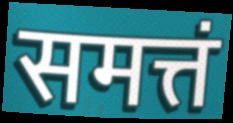
समत्तं